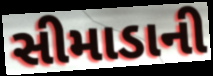
સીમાડાની